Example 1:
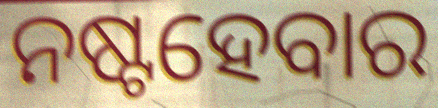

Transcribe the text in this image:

ନଷ୍ଟହେବାର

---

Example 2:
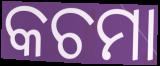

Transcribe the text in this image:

କଚମା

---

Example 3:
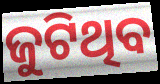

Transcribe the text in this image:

ଜୁଟିଥିବ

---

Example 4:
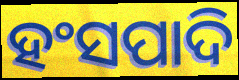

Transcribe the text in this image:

ହଂସପାଦି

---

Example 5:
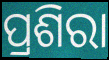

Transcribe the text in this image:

ପ୍ରଶିରା